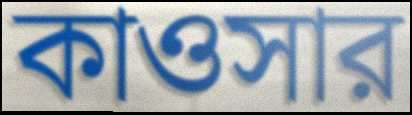
কাওসার